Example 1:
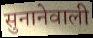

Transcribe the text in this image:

सुनानेवाली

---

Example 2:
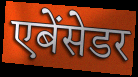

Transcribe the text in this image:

एबेंसेडर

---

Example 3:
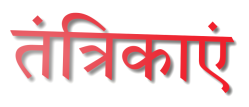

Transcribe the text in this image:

तंत्रिकाएं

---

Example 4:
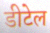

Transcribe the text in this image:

डीटेल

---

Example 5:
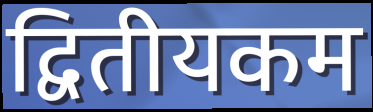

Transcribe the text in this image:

द्वितीयकम